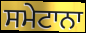
ਸਮੇਟਾਨਾ